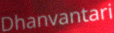
Dhanvantari